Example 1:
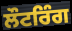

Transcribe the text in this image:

ਲੌਟਰਿੰਗ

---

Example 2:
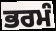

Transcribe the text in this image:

ਭਰਮੰ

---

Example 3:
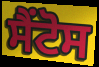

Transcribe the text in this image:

ਸੈਂਟੋਸ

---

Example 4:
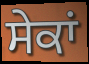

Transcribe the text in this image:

ਸੇਕਾਂ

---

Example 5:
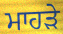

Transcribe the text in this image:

ਮਾਹੜੇ